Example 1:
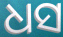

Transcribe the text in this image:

ଧସ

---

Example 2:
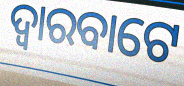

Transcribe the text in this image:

ଦ୍ୱାରବାଟେ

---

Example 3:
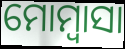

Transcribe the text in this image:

ମୋମ୍ବାସା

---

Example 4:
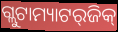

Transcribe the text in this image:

ଗ୍ଲୁଟାମ୍ୟାଟର୍‌ଜିକ୍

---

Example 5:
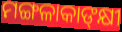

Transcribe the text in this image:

ମଙ୍ଗଳାକାଙ୍‍କ୍ଷୀ